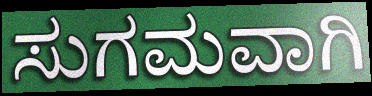
ಸುಗಮವಾಗಿ